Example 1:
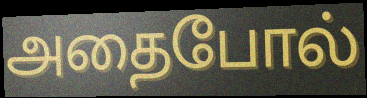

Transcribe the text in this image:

அதைபோல்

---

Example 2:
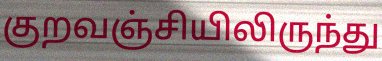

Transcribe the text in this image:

குறவஞ்சியிலிருந்து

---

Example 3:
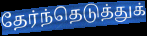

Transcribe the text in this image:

தேர்ந்தெடுத்துக்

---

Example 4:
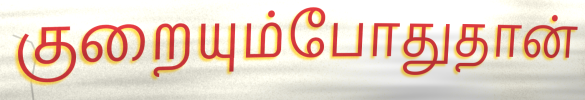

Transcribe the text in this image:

குறையும்போதுதான்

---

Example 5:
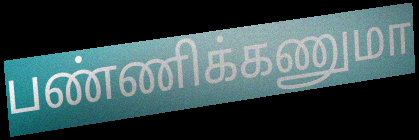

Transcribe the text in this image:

பண்ணிக்கணுமா